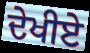
ਦੇਖੀਏ